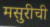
मसुरीची